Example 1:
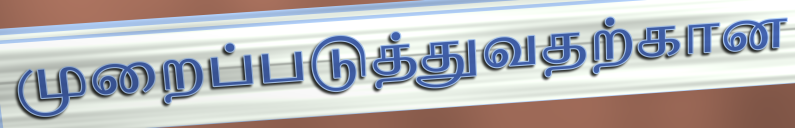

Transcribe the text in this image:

முறைப்படுத்துவதற்கான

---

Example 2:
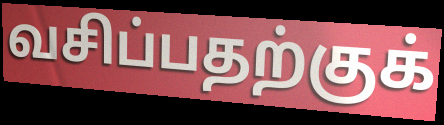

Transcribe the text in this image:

வசிப்பதற்குக்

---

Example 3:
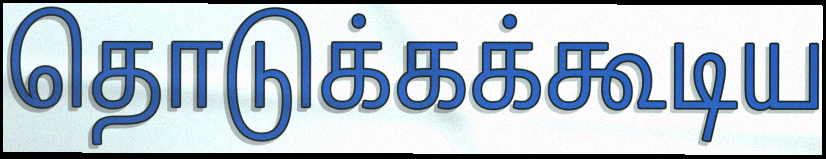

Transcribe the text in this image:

தொடுக்கக்கூடிய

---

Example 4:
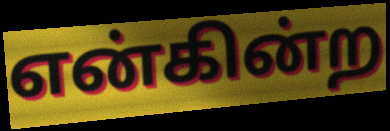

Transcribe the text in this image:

என்கின்ற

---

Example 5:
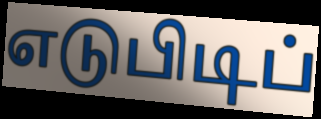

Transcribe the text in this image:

எடுபிடிப்